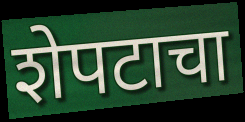
शेपटाचा